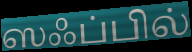
ஸஃப்பில்